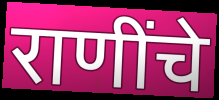
राणींचे